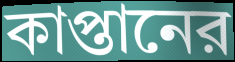
কাপ্তানের